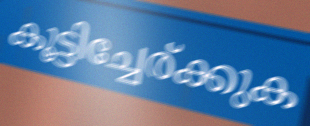
കൂട്ടിച്ചേര്ക്കുക